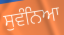
ਸੁਵੰਨਿਆ